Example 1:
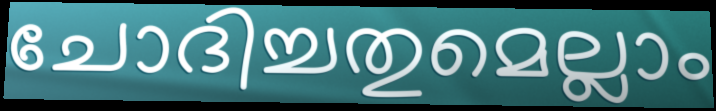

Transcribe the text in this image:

ചോദിച്ചതുമെല്ലാം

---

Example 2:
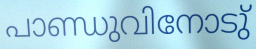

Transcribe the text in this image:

പാണ്ഡുവിനോടു്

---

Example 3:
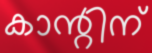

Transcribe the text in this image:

കാന്റിന്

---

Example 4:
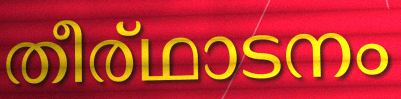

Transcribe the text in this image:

തീര്ഥാടനം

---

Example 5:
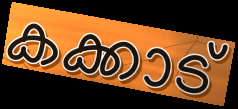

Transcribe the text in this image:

കക്കാട്